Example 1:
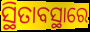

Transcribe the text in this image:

ସ୍ଥିତାବସ୍ଥାରେ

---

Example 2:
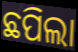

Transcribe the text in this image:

ଛପିଲା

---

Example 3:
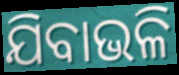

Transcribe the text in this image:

ଯିବାଭଳି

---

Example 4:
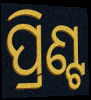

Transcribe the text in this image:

ପ୍ରିଣ୍ଟ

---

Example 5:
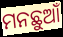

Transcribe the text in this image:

ମନଛୁଆଁ